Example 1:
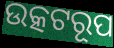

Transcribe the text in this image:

ଉତ୍କଟରୂପ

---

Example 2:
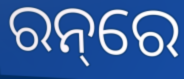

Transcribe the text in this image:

ରନ୍‌ରେ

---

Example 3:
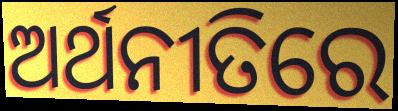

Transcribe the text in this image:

ଅର୍ଥନୀତିରେ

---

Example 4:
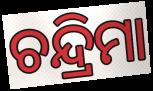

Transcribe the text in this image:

ଚନ୍ଦ୍ରିମା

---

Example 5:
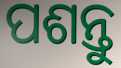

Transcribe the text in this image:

ପଶନ୍ତୁ